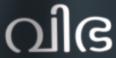
വിഭ